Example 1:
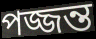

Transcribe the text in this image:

পজ্জন্ত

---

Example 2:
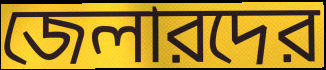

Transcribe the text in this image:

জেলারদের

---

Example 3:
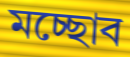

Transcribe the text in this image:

মচ্ছোব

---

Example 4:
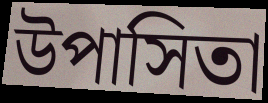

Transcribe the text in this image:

উপাসিতা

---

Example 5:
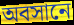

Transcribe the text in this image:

অবসানে